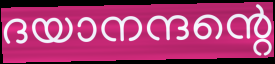
ദയാനന്ദന്റെ